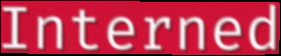
Interned